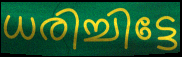
ധരിച്ചിട്ടേ